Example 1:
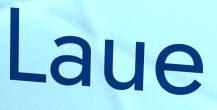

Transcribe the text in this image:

Laue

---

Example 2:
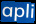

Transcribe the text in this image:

apli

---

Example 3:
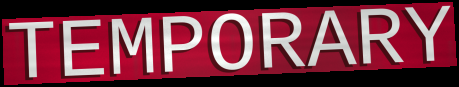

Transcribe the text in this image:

TEMPORARY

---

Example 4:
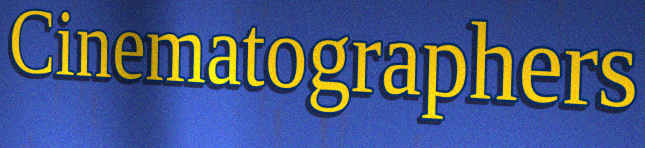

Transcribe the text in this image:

Cinematographers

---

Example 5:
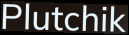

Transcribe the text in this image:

Plutchik